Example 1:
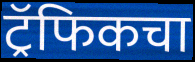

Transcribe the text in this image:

ट्रॅफिकचा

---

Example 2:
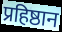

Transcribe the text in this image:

प्रहिष्ठान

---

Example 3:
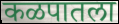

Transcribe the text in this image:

कळपातला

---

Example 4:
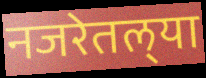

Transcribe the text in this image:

नजरेतल्या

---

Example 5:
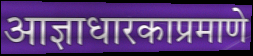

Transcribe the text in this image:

आज्ञाधारकाप्रमाणे